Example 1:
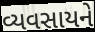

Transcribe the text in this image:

વ્યવસાયને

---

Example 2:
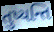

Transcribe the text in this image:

તુષ્યન્તિ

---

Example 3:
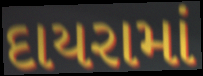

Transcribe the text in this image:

દાયરામાં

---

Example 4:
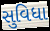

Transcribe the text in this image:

સુવિધા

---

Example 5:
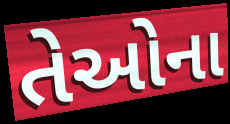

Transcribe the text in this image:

તેઓના